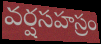
వర్షసహస్రం